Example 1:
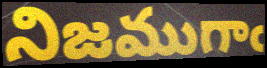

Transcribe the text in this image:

నిజముగాఁ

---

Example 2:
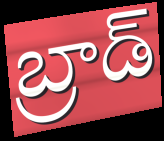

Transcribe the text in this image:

బ్రాడ్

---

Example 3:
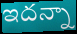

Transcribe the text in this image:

ఇదన్నా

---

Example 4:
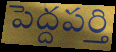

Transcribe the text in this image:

పెద్దపర్తి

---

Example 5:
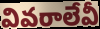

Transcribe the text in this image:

వివరాలేవీ